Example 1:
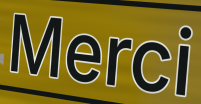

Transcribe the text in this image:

Merci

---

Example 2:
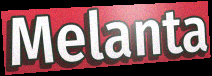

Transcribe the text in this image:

Melanta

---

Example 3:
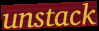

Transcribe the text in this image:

unstack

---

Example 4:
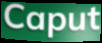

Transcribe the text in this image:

Caput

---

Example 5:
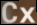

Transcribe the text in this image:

Cx